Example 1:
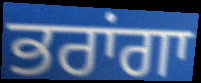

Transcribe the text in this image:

ਭਰਾਂਗਾ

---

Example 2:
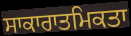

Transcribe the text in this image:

ਸਾਕਾਰਾਤਮਿਕਤਾ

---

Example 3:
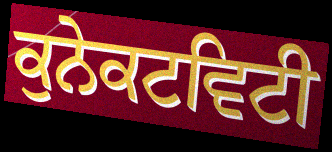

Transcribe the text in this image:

ਕੁਨੇਕਟਵਿਟੀ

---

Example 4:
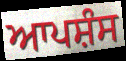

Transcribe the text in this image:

ਆਪਸ਼ੰਸ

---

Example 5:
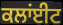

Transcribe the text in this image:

ਕਲਾਂਈਟ